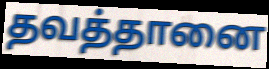
தவத்தானை